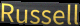
Russell